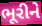
ભૂરીને